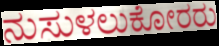
ನುಸುಳಲುಕೋರರು